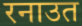
रनाउत